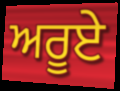
ਅਰੂਏ